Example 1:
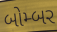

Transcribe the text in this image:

બોમ્બર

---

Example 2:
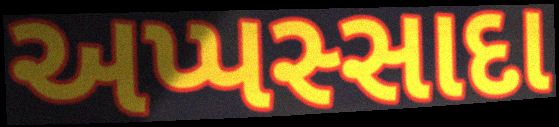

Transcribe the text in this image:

અપ્પસ્સાદા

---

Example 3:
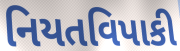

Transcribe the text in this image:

નિયતવિપાકી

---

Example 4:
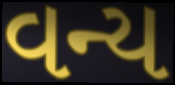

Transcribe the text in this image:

વન્ય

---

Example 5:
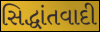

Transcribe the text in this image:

સિદ્ધાંતવાદી